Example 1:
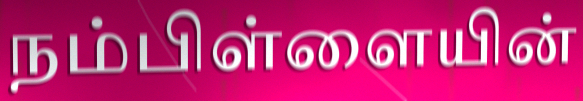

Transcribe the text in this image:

நம்பிள்ளையின்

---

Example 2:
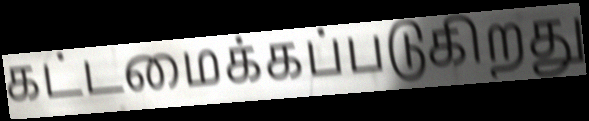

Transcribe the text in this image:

கட்டமைக்கப்படுகிறது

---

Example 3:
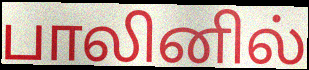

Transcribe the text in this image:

பாலினில்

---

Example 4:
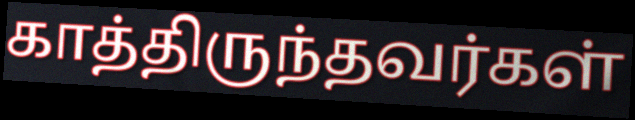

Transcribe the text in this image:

காத்திருந்தவர்கள்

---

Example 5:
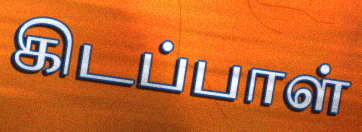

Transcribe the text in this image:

கிடப்பாள்